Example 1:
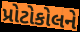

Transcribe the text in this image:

પ્રોટોકોલને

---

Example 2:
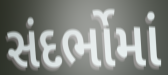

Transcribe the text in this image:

સંદર્ભોમાં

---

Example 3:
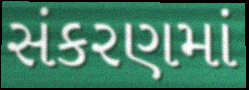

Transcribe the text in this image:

સંકરણમાં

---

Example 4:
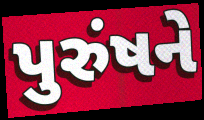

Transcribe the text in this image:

પુરુંષને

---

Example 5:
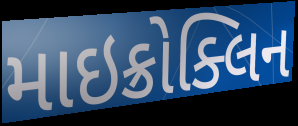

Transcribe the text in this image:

માઇક્રોક્લિન